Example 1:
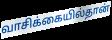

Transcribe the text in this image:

வாசிக்கையில்தான்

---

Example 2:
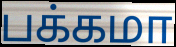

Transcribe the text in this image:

பக்கமா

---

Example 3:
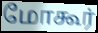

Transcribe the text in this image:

மோகூர்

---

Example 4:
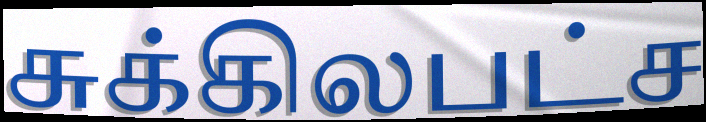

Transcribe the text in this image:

சுக்கிலபட்ச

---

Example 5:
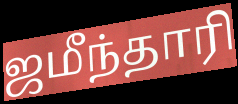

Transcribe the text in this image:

ஜமீந்தாரி